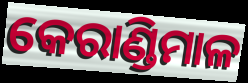
କେରାଣ୍ଡିମାଳ